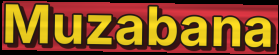
Muzabana